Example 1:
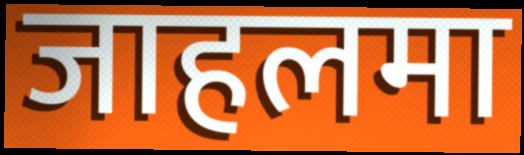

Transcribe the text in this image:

जाहलमा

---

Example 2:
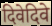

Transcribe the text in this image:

दिवेदिवे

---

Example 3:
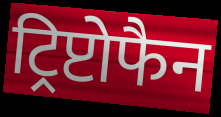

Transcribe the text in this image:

ट्रिप्टोफैन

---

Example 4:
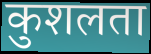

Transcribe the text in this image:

कुशलता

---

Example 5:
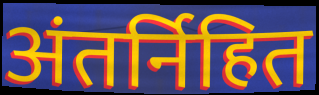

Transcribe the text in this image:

अंतर्निहित